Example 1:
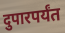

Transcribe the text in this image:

दुपारपर्यंत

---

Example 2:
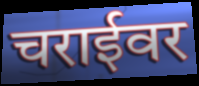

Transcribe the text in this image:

चराईवर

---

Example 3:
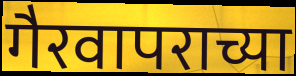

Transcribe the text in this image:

गैरवापराच्या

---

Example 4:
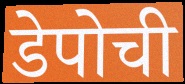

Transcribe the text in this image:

डेपोची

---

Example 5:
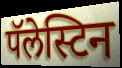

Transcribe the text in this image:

पॅलेस्टिन